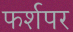
फर्शपर